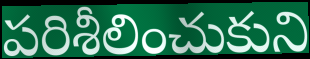
పరిశీలించుకుని